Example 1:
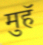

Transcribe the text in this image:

मुहॅ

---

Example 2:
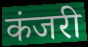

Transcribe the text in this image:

कंजरी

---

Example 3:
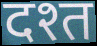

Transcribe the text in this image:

दश्त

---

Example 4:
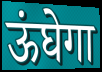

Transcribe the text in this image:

ऊंघेगा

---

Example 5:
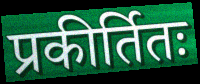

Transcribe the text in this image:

प्रकीर्तितः